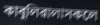
কাবুলিৱালাসকলে